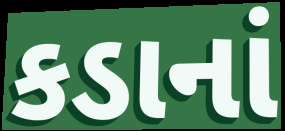
કડાનાં